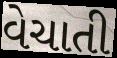
વેચાતી